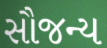
સૌજન્ય